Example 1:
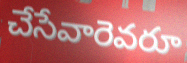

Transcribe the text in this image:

చేసేవారెవరూ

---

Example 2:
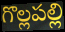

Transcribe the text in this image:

గొల్లపల్లి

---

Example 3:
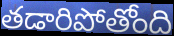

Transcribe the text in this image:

తడారిపోతోంది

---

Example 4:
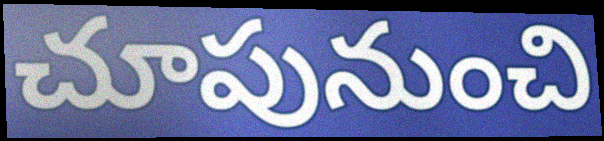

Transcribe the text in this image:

చూపునుంచి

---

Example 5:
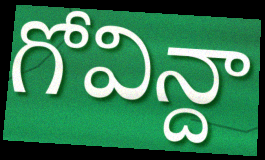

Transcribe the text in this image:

గోవిన్దా